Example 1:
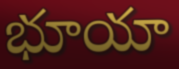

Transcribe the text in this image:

భూయా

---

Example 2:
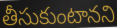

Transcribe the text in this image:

తీసుకుంటానని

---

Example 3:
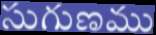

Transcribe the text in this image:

సుగుణము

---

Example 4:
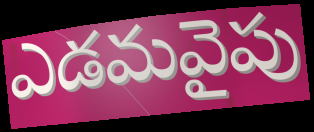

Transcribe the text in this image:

ఎడమవైపు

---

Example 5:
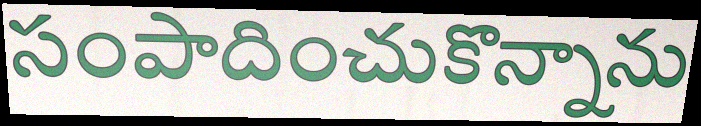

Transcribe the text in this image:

సంపాదించుకొన్నాను